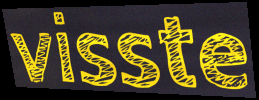
visste